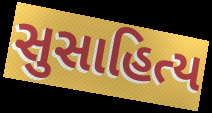
સુસાહિત્ય